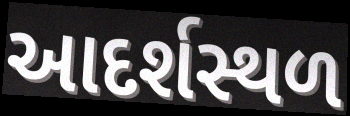
આદર્શસ્થળ